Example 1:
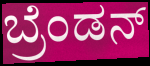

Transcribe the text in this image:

ಬ್ರೆಂಡನ್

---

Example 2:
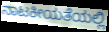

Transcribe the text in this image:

ನಾಟಕೀಯತೆಯಲ್ಲಿ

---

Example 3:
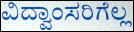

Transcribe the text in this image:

ವಿದ್ವಾಂಸರಿಗೆಲ್ಲ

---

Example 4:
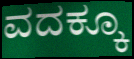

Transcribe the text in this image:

ವದಕ್ಕೂ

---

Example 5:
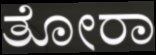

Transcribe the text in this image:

ತೋರಾ